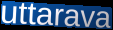
uttarava